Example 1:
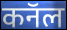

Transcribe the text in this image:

कनॅल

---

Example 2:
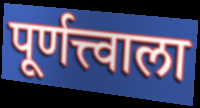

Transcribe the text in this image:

पूर्णत्त्वाला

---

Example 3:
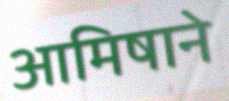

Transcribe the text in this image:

आमिषाने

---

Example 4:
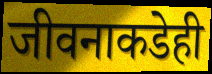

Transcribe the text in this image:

जीवनाकडेही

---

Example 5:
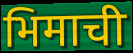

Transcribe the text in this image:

भिमाची